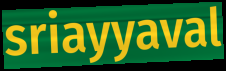
sriayyaval